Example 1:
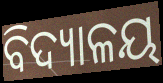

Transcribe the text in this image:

ବିଦ୍ଯାଳୟ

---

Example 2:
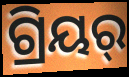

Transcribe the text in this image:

ଗ୍ରିୟର୍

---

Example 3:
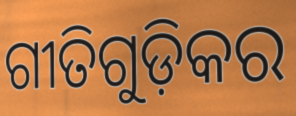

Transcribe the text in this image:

ଗୀତିଗୁଡ଼ିକର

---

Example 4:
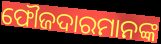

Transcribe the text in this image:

ଫୌଜଦାରମାନଙ୍କ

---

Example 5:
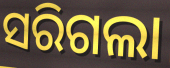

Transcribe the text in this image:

ସରିଗଲା